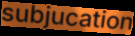
subjucation